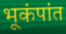
भूकंपांत